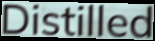
Distilled